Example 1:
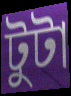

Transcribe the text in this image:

টুটা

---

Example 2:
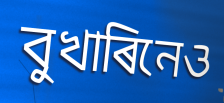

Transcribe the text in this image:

বুখাৰিনেও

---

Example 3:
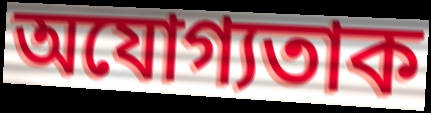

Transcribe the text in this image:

অযোগ্যতাক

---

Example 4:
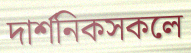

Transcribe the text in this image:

দাৰ্শনিকসকলে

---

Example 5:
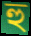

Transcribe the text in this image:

হু